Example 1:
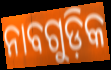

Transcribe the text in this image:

ନାବଗୁଡ଼ିକ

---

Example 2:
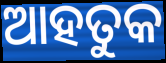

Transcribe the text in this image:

ଆହତୁକ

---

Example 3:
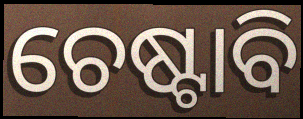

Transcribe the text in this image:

ଚେଷ୍ଟାବି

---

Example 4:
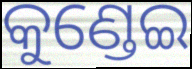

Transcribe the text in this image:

କୁଣ୍ଡେଇ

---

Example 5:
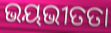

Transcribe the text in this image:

ଭୟଭୀତତା